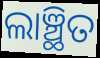
ଲାଞ୍ଛିତ